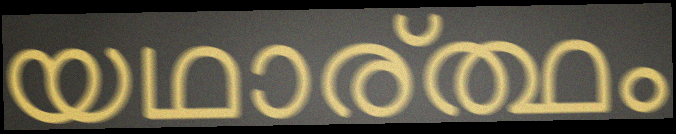
യഥാര്ത്ഥം